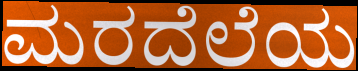
ಮರದೆಲೆಯ